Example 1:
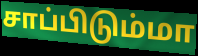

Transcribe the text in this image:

சாப்பிடும்மா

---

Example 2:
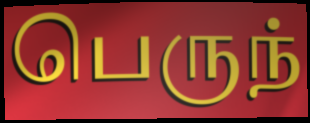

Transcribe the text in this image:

பெருந்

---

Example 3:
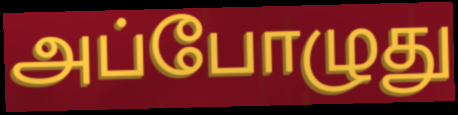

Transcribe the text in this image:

அப்போழுது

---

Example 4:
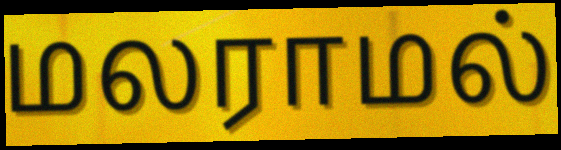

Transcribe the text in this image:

மலராமல்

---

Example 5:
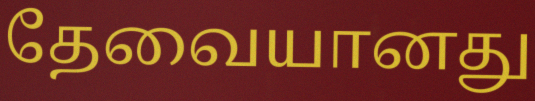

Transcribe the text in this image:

தேவையானது